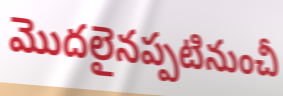
మొదలైనప్పటినుంచీ